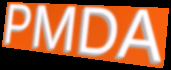
PMDA